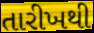
તારીખથી